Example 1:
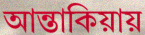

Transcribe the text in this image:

আন্তাকিয়ায়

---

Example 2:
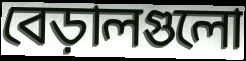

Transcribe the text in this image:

বেড়ালগুলো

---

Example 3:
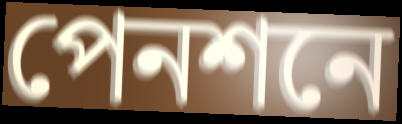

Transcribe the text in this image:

পেনশনে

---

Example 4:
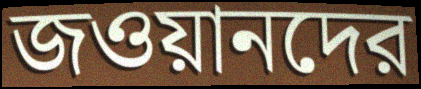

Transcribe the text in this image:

জওয়ানদের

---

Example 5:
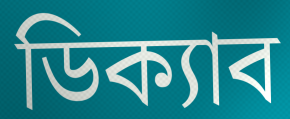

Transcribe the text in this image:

ডিক্যাব